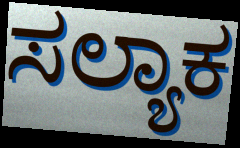
ಸಲ್ಯಾಕ